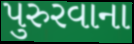
પુરુરવાના